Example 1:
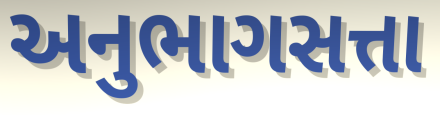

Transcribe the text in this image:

અનુભાગસત્તા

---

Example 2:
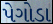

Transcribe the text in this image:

પેગોડા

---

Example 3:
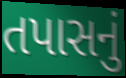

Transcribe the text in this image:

તપાસનું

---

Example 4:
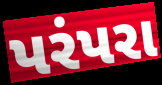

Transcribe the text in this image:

પરંપરા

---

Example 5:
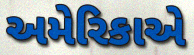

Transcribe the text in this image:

અમેરિકાએ